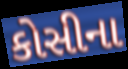
કોસીના